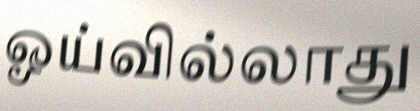
ஓய்வில்லாது